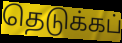
தெடுக்கப்